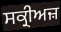
ਸਕ੍ਰੀਅਜ਼